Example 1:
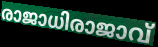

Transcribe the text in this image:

രാജാധിരാജാവ്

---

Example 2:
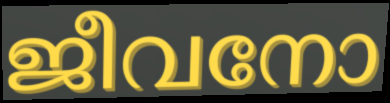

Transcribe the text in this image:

ജീവനോ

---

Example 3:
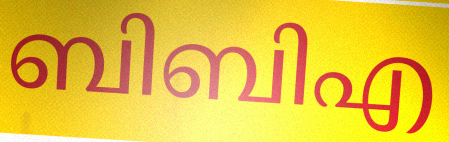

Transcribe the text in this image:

ബിബിഎ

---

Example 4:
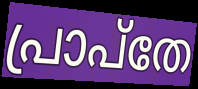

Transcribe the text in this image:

പ്രാപ്തേ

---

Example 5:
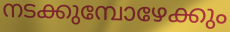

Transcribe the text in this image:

നടക്കുമ്പോഴേക്കും